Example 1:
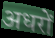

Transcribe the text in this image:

अधरों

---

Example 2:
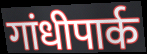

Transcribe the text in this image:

गांधीपार्क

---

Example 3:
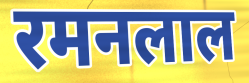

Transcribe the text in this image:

रमनलाल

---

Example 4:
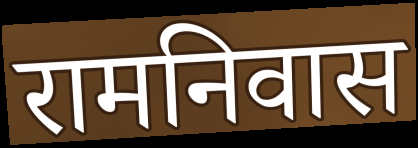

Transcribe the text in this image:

रामनिवास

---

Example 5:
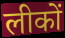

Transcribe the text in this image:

लीकों